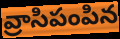
వ్రాసిపంపిన